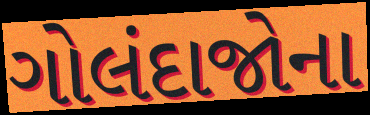
ગોલંદાજોના